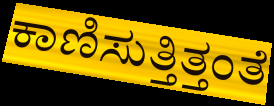
ಕಾಣಿಸುತ್ತಿತ್ತಂತೆ